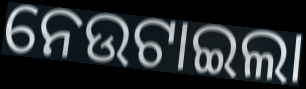
ନେଉଟାଇଲା